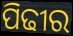
ପିଢୀର